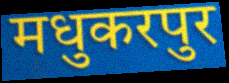
मधुकरपुर